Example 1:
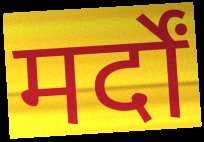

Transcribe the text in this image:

मर्दों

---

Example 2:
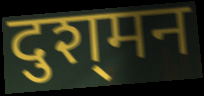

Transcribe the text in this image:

दुश्मन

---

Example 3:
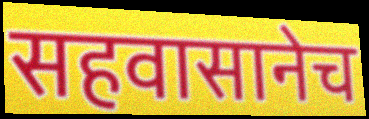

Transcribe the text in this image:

सहवासानेच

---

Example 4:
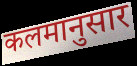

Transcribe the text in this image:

कलमानुसार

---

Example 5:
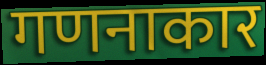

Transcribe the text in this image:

गणनाकार